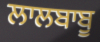
ਲਾਲਬਾਬੂ